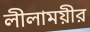
লীলাময়ীর